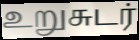
உறுசுடர்